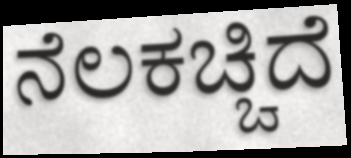
ನೆಲಕಚ್ಚಿದೆ